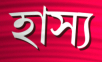
হাস্য